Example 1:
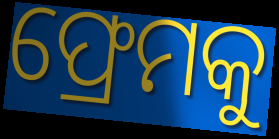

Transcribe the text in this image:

ଫ୍ରେମକୁ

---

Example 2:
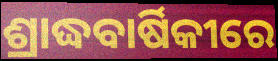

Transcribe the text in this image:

ଶ୍ରାଦ୍ଧବାର୍ଷିକୀରେ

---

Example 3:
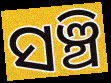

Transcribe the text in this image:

ସଞ୍ଚି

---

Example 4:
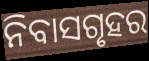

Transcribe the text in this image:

ନିବାସଗୃହର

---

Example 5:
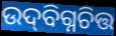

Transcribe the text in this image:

ଉଦ୍‌ବିଗ୍ନଚିତ୍ତ